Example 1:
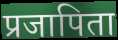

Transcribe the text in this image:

प्रजापिता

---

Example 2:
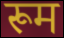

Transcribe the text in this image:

रूम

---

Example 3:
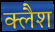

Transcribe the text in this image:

क्लैश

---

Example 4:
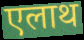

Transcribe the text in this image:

एलाथ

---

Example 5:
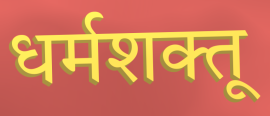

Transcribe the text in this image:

धर्मशक्तू